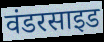
वंडरसाइड